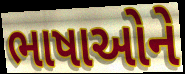
ભાષાઓને